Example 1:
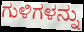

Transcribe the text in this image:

ಗುಳಿಗಳನ್ನು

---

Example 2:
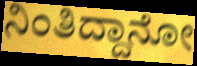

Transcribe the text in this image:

ನಿಂತಿದ್ದಾನೋ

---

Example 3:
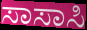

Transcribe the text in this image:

ಸಾಸಾಸಿ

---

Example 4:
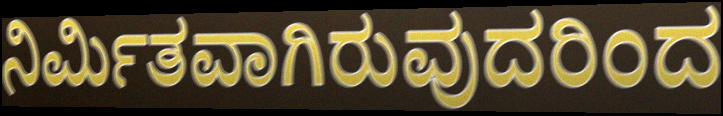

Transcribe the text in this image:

ನಿರ್ಮಿತವಾಗಿರುವುದರಿಂದ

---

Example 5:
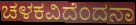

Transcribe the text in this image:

ಚಳಕವಿದೆಂದನಾ